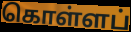
கொள்ளப்